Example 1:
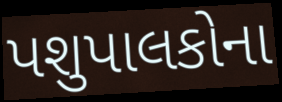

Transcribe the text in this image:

પશુપાલકોના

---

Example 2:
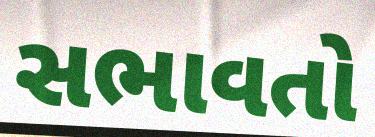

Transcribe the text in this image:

સભાવતો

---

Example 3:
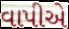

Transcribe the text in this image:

વાપીએ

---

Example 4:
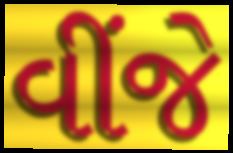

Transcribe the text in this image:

વીંજે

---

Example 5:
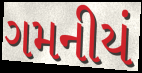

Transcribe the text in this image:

ગમનીયં